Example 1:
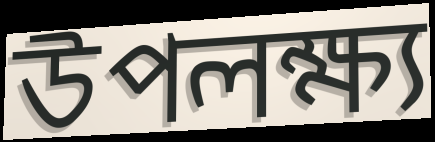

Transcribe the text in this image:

উপলক্ষ্য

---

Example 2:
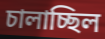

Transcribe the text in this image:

চালাচ্ছিল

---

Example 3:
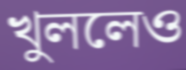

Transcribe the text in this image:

খুললেও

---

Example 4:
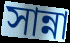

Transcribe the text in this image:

সান্না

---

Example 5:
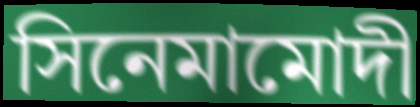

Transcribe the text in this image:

সিনেমামোদী